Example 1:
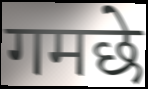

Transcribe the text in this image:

गमछे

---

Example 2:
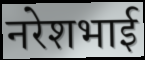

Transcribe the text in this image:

नरेशभाई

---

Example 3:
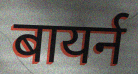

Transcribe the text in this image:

बायर्न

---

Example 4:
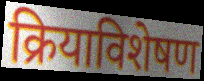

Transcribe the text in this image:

क्रियाविशेषण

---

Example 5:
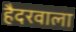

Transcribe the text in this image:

हैदरवाला